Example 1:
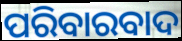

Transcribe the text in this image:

ପରିବାରବାଦ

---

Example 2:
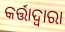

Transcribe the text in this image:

କର୍ତ୍ତାଦ୍ଵାରା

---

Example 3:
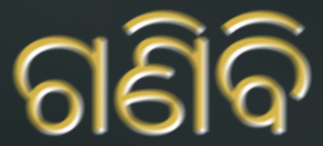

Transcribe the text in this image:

ଗଣିବି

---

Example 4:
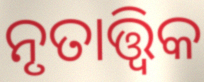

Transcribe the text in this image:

ନୃତାତ୍ତ୍ବିକ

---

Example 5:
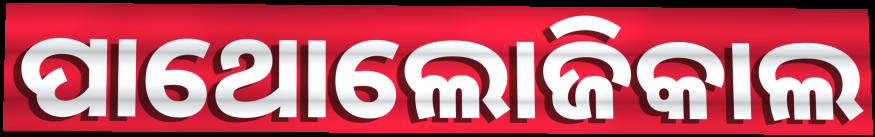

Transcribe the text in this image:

ପାଥୋଲୋଜିକାଲ